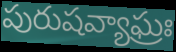
పురుషవ్యాఘ్రః